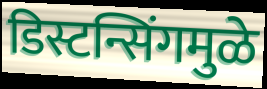
डिस्टन्सिंगमुळे